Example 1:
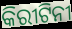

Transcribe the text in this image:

କିରୀଟିନୀ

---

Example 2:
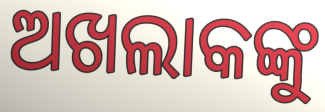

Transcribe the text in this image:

ଅଖଲାକଙ୍କୁ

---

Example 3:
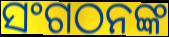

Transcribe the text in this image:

ସଂଗଠନଙ୍କ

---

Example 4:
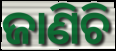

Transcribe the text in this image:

ଜାଣିଚି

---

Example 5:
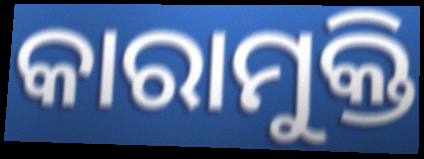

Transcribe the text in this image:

କାରାମୁକ୍ତି